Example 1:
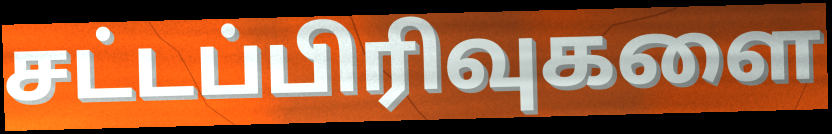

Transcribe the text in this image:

சட்டப்பிரிவுகளை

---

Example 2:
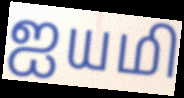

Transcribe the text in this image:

ஐயமி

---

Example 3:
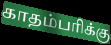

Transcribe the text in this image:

காதம்பரிக்கு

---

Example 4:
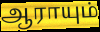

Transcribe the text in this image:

ஆராயும்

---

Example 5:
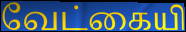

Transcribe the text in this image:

வேட்கையி